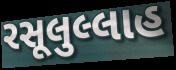
રસૂલુલ્લાહ